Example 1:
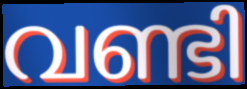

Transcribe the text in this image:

വണ്ടി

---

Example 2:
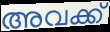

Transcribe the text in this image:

അവക്ക്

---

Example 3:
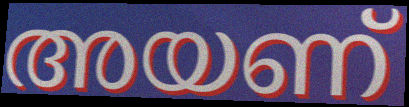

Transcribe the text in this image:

അയണ്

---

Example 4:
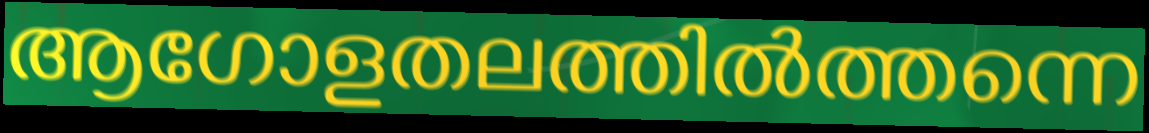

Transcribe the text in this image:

ആഗോളതലത്തിൽത്തന്നെ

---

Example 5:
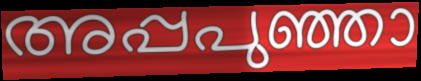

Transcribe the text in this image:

അപ്പപുഞ്ഞാ